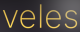
veles